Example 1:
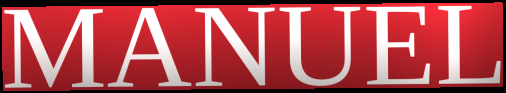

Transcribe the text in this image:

MANUEL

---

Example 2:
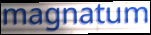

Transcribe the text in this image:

magnatum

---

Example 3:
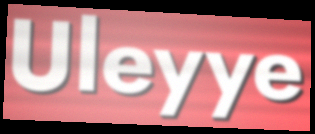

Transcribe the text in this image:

Uleyye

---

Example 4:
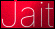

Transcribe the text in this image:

Jait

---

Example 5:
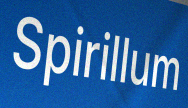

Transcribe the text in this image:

Spirillum